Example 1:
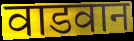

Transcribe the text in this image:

वाडवान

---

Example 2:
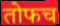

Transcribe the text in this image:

तोफच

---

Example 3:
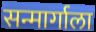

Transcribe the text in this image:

सन्मार्गाला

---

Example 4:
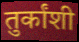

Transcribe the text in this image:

तुर्कांशी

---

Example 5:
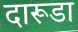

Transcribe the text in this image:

दारूडा